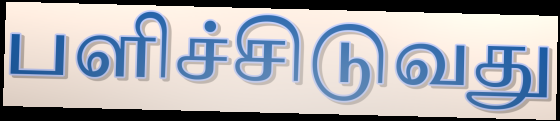
பளிச்சிடுவது